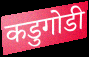
कडुगोडी